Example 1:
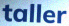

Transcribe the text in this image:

taller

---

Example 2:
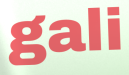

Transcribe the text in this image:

gali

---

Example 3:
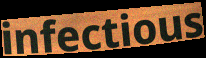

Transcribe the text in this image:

infectious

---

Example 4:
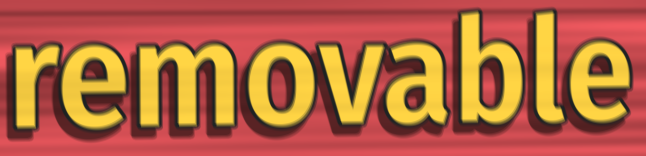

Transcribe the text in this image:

removable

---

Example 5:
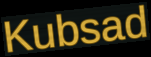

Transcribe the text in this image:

Kubsad